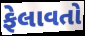
ફેલાવતો